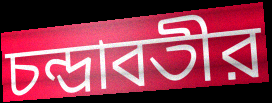
চন্দ্রাবতীর